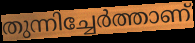
തുന്നിച്ചേർത്താണ്